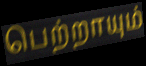
பெற்றாயும்